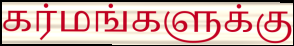
கர்மங்களுக்கு